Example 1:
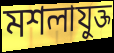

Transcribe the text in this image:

মশলাযুক্ত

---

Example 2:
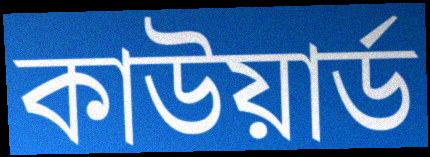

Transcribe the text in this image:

কাউয়ার্ড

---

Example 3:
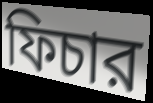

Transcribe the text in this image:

ফিচার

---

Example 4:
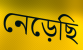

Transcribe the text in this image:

নেড়েছি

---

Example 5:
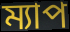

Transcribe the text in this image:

ম্যাপ